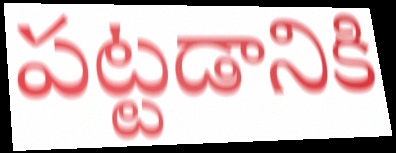
పట్టడానికి